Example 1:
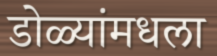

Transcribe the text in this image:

डोळ्यांमधला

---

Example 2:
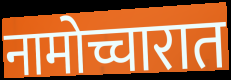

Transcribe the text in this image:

नामोच्चारात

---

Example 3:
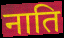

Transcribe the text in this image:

नाति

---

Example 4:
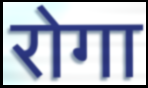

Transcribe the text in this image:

रोगा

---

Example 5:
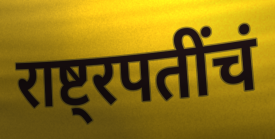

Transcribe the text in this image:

राष्ट्रपतींचं